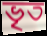
ভৃত